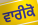
ਵਾਰੀਕੋ